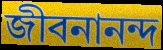
জীবনানন্দ